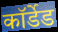
कॉर्डेड